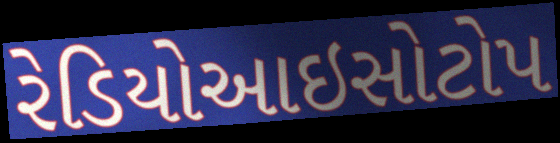
રેડિયોઆઇસોટોપ